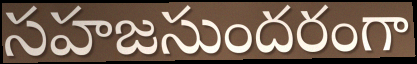
సహజసుందరంగా